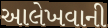
આલેખવાની